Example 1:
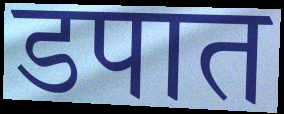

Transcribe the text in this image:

डपात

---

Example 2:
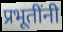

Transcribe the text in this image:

प्रभूतींनी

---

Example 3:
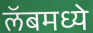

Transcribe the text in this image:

लॅबमध्ये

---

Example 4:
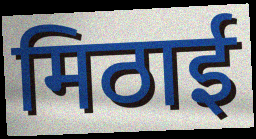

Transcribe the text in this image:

मिठाई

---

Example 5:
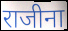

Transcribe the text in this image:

राजीना